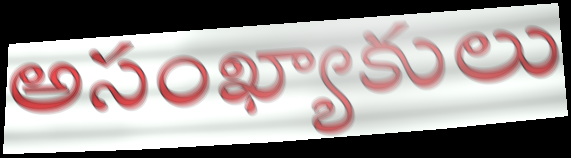
అసంఖ్యాకులు